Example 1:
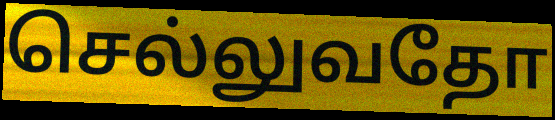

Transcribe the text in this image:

செல்லுவதோ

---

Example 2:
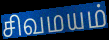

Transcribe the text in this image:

சிவமயம்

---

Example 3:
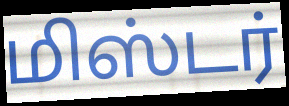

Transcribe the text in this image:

மிஸ்டர்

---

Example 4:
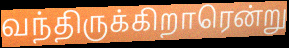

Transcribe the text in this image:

வந்திருக்கிறாரென்று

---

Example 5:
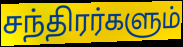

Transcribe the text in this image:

சந்திரர்களும்